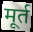
मूर्त